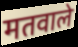
मतवाले